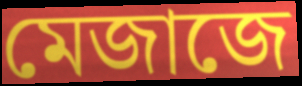
মেজাজে